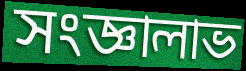
সংজ্ঞালাভ